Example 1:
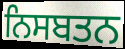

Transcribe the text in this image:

ਨਿਸਬਤਨ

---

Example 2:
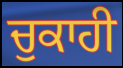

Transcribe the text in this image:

ਚੁਕਾਹੀ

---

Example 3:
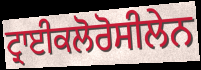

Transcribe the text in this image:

ਟ੍ਰਾਈਕਲੋਰੋਸੀਲੇਨ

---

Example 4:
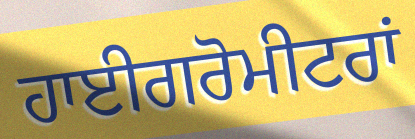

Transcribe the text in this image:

ਹਾਈਗਰੋਮੀਟਰਾਂ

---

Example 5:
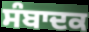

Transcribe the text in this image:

ਸੰਬਾਦਕ